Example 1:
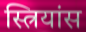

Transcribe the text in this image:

स्त्रियांस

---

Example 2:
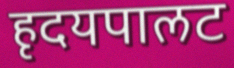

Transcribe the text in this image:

हृदयपालट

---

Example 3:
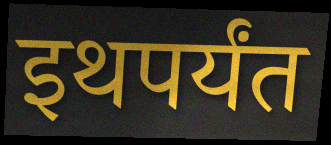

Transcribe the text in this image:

इथपर्यंत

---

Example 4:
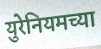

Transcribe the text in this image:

युरेनियमच्या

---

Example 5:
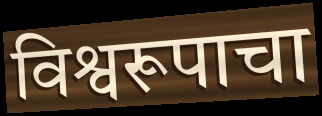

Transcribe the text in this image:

विश्वरूपाचा